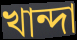
খান্দা